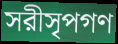
সরীসৃপগণ